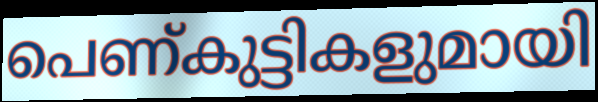
പെണ്കുട്ടികളുമായി